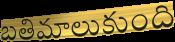
బతిమాలుకుంది